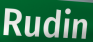
Rudin